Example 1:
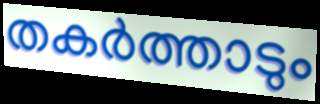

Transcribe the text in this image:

തകർത്താടും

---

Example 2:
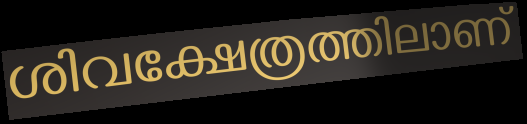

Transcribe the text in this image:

ശിവക്ഷേത്രത്തിലാണ്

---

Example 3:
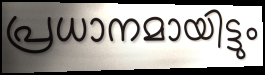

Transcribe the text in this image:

പ്രധാനമായിട്ടും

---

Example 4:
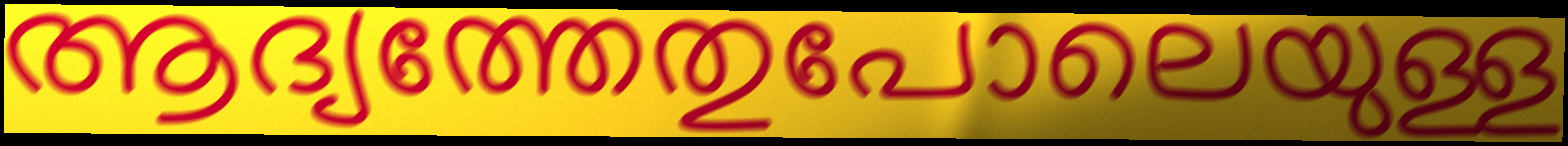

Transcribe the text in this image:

ആദ്യത്തേതുപോലെയുള്ള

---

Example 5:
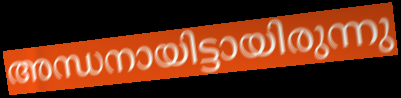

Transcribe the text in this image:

അന്ധനായിട്ടായിരുന്നു